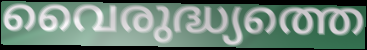
വൈരുദ്ധ്യത്തെ